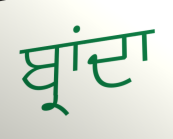
ਬ੍ਰਾਂਦਾ